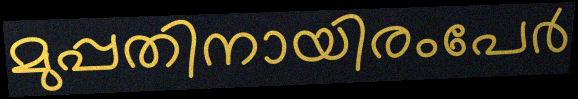
മുപ്പതിനായിരംപേർ